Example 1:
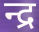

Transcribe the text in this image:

न्द्र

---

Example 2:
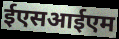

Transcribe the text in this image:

ईएसआईएम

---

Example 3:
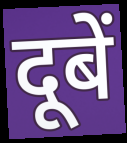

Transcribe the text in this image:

दूबें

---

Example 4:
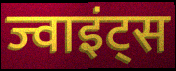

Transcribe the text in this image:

ज्वाइंट्स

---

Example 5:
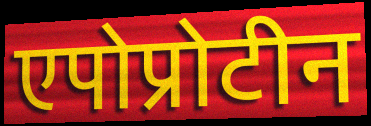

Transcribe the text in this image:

एपोप्रोटीन